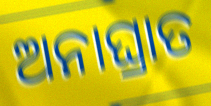
ଅନାଘ୍ରାତ